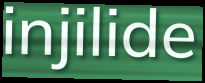
injilide